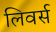
लिवर्स